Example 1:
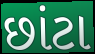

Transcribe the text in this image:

છાંટા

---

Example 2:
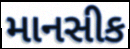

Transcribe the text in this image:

માનસીક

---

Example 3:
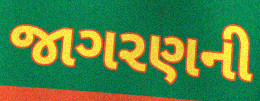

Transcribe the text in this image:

જાગરણની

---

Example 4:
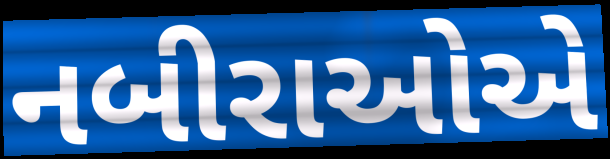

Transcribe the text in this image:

નબીરાઓએ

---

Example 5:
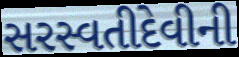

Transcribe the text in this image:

સરસ્વતીદેવીની